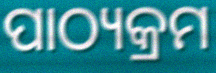
ପାଠ୍ୟକ୍ରମ